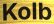
Kolb